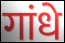
गांधे